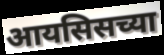
आयसिसच्या